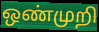
ஒண்முறி